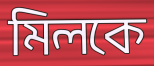
মিলকে